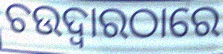
ଚଉଦ୍ଵାରଠାରେ